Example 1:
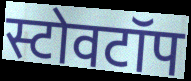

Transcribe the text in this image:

स्टोवटॉप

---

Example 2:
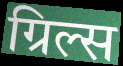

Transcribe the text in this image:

ग्रिल्स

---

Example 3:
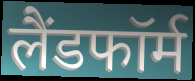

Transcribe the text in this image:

लैंडफॉर्म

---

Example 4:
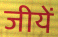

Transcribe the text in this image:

जीयें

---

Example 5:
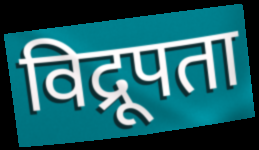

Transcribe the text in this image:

विद्रूपता